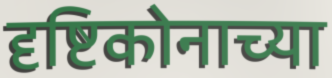
दृष्टिकोनाच्या